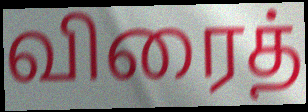
விரைத்